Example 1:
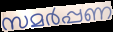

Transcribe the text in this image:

സമർപ്പണ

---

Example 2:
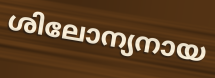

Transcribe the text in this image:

ശിലോന്യനായ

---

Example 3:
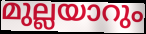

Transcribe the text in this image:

മുല്ലയാറും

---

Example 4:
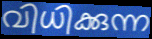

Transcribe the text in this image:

വിധിക്കുന്ന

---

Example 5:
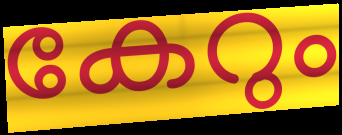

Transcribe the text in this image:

കേറും